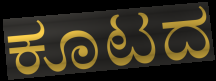
ಕೂಟದ